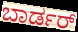
ಬಾರ್ಡರ್